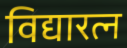
विद्यारत्न